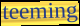
teeming